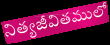
నిత్యజీవితములో